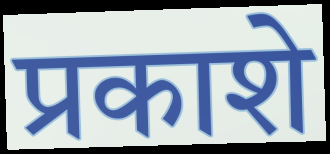
प्रकाशे